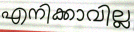
എനിക്കാവില്ല